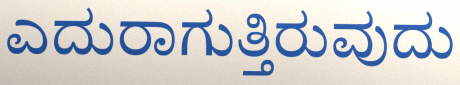
ಎದುರಾಗುತ್ತಿರುವುದು